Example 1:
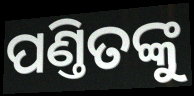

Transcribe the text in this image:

ପଣ୍ତିତଙ୍କୁ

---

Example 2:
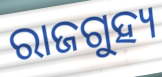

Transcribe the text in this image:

ରାଜଗୁହ୍ୟ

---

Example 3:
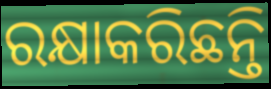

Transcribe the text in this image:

ରକ୍ଷାକରିଛନ୍ତି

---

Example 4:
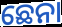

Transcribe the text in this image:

ଛେନା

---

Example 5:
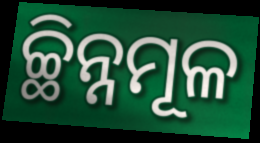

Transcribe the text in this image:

ଚ୍ଛିନ୍ନମୂଳ